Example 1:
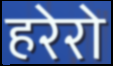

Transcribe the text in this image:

हरेरो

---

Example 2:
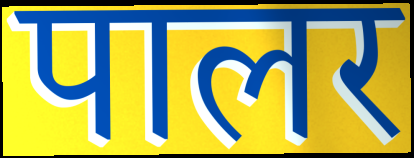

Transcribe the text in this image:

पालर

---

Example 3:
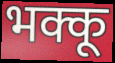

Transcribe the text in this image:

भक्कू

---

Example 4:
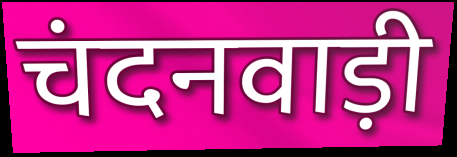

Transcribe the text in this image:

चंदनवाड़ी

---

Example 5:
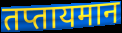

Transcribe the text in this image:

तप्तायमान